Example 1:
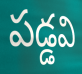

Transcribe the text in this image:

పడ్డవి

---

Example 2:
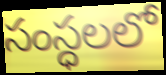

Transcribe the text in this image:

సంస్ధలలో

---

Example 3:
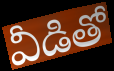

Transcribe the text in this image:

వీడితో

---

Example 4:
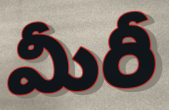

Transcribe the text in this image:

మీరీ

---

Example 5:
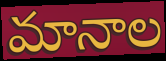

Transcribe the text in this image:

మానాల